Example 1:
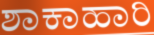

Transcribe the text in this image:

ಶಾಕಾಹಾರಿ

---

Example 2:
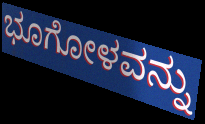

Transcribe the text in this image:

ಭೂಗೋಳವನ್ನು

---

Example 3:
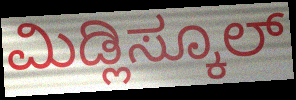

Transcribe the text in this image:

ಮಿಡ್ಲಿಸ್ಕೂಲ್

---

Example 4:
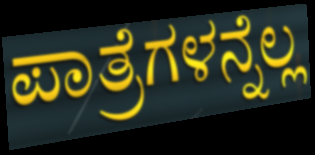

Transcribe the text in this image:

ಪಾತ್ರೆಗಳನ್ನೆಲ್ಲ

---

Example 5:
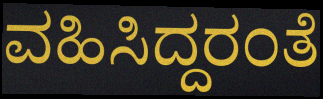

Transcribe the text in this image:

ವಹಿಸಿದ್ದರಂತೆ